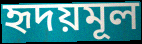
হৃদয়মূল